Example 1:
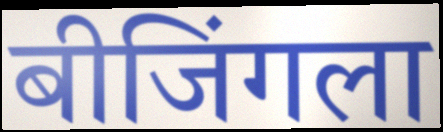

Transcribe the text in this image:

बीजिंगला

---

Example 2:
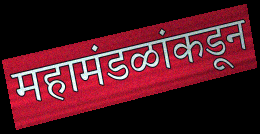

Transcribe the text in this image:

महामंडळांकडून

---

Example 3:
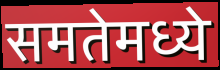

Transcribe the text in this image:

समतेमध्ये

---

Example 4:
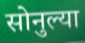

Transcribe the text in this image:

सोनुल्या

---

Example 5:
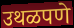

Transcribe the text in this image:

उथळपणे